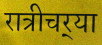
रात्रीचर्या